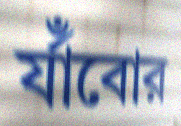
র্যাঁবোর